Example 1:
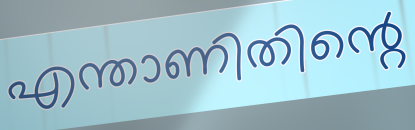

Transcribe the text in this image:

എന്താണിതിന്റെ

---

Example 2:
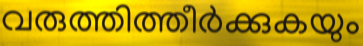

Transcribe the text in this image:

വരുത്തിത്തീർക്കുകയും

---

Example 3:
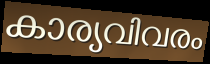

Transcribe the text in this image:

കാര്യവിവരം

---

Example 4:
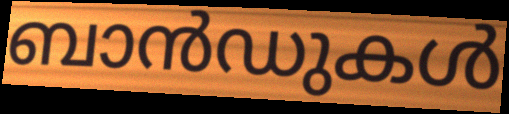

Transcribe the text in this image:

ബാൻഡുകൾ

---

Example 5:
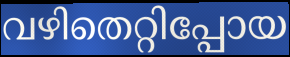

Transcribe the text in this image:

വഴിതെറ്റിപ്പോയ